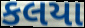
કલયા